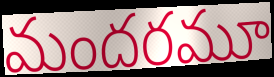
మందరమూ